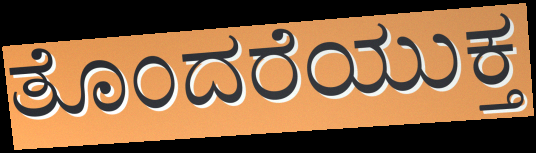
ತೊಂದರೆಯುಕ್ತ